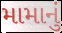
મામાનું